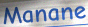
Manane